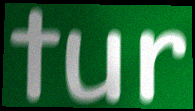
tur